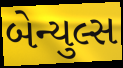
બેન્યુલ્સ